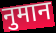
नुमान